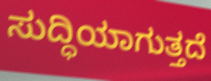
ಸುದ್ಧಿಯಾಗುತ್ತದೆ